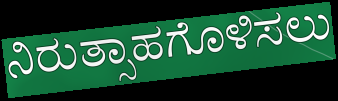
ನಿರುತ್ಸಾಹಗೊಳಿಸಲು